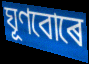
ঘূণবোৰে